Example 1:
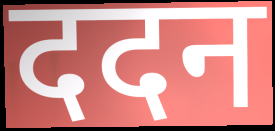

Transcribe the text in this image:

ददन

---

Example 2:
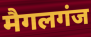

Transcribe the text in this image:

मैगलगंज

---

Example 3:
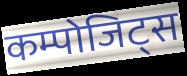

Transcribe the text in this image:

कम्पोजिट्स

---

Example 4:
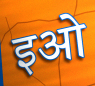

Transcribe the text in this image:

इओ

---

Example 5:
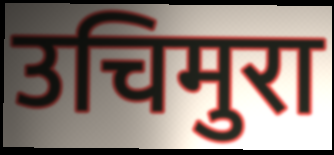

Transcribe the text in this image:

उचिमुरा